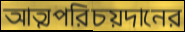
আত্মপরিচয়দানের